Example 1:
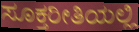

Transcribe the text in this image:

ಸೂಕ್ತರೀತಿಯಲ್ಲಿ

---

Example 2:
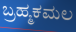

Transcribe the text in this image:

ಬ್ರಹ್ಮಕಮಲ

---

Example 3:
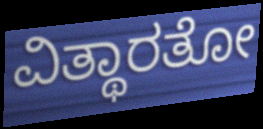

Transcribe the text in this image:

ವಿತ್ಥಾರತೋ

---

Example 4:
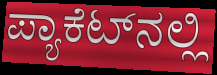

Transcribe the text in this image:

ಪ್ಯಾಕೆಟ್‌ನಲ್ಲಿ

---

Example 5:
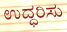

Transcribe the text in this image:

ಉದ್ಧರಿಸು